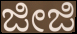
ಜೀಜಿ